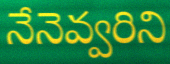
నేనెవ్వరిని